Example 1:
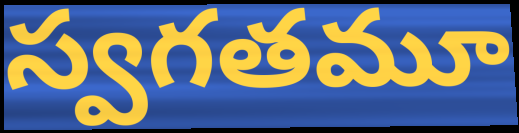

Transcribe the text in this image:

స్వగతమూ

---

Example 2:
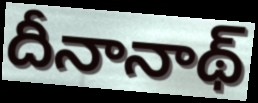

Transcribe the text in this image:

దీనానాథ్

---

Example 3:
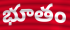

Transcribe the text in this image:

భూతం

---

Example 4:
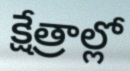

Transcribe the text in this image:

క్షేత్రాల్లో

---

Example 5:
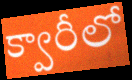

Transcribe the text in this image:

క్వారీలో